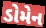
ડોમેન